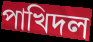
পাখিদল